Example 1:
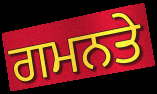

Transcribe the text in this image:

ਗਮਨਤੇ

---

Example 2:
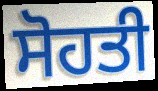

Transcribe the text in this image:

ਸੋਹਤੀ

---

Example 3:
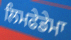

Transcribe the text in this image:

ਲਿਮਫੇਡੇਮਾ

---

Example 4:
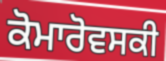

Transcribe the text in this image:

ਕੋਮਾਰੋਵਸਕੀ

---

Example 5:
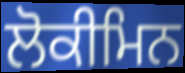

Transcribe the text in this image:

ਲੋਕੀਮਿਨ